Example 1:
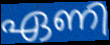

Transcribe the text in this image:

ഏണി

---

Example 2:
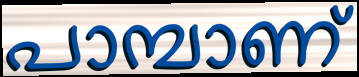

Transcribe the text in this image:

പാമ്പാണ്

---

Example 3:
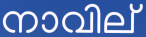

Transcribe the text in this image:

നാവില്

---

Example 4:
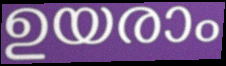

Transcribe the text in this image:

ഉയരാം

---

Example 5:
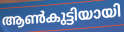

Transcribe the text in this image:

ആൺകുട്ടിയായി